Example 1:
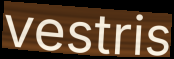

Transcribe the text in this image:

vestris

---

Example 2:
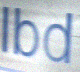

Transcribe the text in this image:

Ibd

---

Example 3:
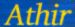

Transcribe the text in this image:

Athir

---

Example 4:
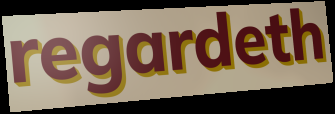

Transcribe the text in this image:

regardeth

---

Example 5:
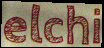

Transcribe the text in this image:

elchi